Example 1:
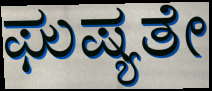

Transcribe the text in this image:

ಘುಷ್ಯತೇ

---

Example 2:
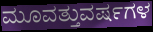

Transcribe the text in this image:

ಮೂವತ್ತುವರ್ಷಗಳ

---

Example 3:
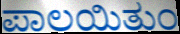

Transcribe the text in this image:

ಪಾಲಯಿತುಂ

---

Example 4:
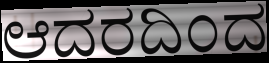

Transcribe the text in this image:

ಆದರದಿಂದ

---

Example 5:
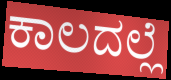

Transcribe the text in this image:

ಕಾಲದಲ್ಲೆ